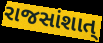
રાજસાંશાત્